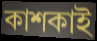
কাশকাই